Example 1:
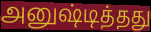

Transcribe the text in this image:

அனுஷ்டித்தது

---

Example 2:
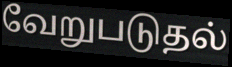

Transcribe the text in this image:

வேறுபடுதல்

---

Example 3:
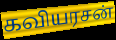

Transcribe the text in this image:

கவியரசன்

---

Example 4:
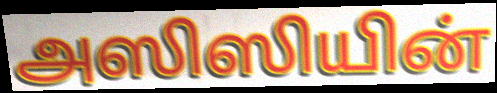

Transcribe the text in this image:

அஸிஸியின்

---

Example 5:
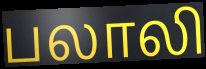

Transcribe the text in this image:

பலாலி